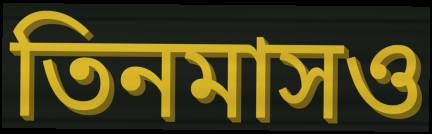
তিনমাসও